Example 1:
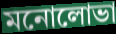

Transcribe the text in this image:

মনোলোভা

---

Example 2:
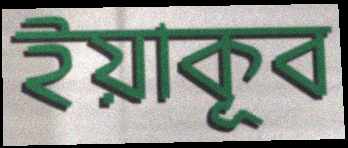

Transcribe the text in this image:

ইয়াকূব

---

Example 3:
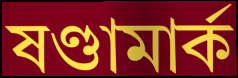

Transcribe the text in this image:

ষণ্ডামার্ক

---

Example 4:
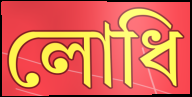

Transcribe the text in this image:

লোধি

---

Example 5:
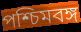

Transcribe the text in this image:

পশ্চিমবঙ্গ